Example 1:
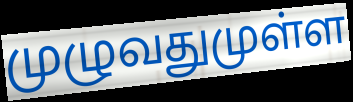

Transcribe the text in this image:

முழுவதுமுள்ள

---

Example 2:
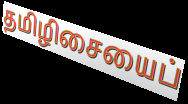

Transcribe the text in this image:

தமிழிசையைப்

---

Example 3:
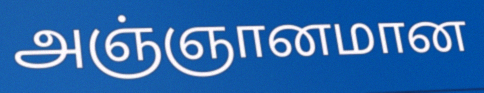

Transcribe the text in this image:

அஞ்ஞானமான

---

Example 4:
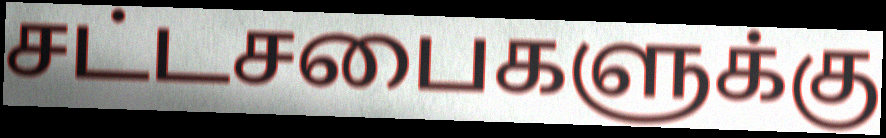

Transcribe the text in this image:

சட்டசபைகளுக்கு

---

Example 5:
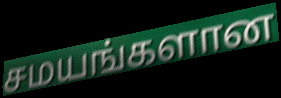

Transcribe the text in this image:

சமயங்களான